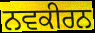
ਨਵਕੀਰਨ